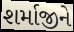
શર્માજીને